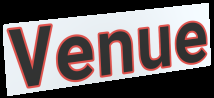
Venue